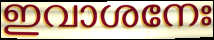
ഇവാശനേഃ